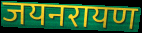
जयनरायण